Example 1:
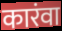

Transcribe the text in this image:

कारंवा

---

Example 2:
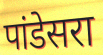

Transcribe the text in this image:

पांडेसरा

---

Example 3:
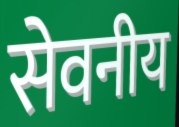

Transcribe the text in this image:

सेवनीय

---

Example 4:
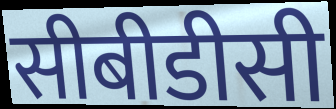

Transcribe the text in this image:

सीबीडीसी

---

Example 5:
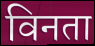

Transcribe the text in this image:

विनता